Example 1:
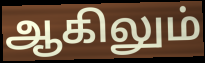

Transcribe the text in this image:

ஆகிலும்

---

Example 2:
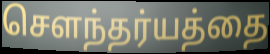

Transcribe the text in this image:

செளந்தர்யத்தை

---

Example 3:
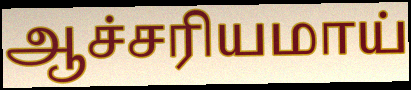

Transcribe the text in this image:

ஆச்சரியமாய்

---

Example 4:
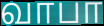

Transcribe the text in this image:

வாபா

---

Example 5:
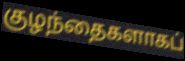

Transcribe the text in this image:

குழந்தைகளாகப்